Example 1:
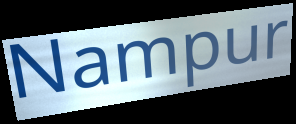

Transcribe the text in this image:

Nampur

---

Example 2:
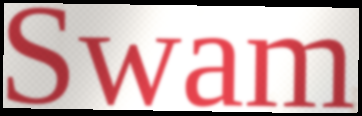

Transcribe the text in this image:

Swam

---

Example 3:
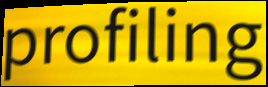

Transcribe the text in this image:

profiling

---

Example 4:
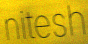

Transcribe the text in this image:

nitesh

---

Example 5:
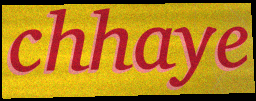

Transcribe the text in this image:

chhaye